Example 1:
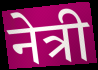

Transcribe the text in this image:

नेत्री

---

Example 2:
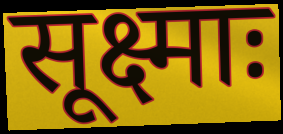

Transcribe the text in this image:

सूक्ष्माः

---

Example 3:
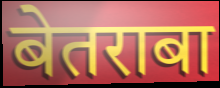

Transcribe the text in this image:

बेतराबा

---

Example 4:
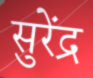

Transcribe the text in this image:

सुरेंद्र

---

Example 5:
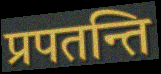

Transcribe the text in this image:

प्रपतन्ति